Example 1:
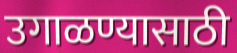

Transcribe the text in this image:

उगाळण्यासाठी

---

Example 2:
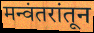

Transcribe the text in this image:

मन्वंतरांतून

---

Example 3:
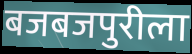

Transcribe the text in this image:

बजबजपुरीला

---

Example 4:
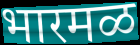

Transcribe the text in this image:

भारमळ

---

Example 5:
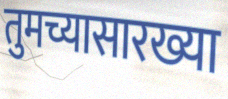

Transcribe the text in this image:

तुमच्यासारख्या